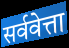
सर्ववेत्ता